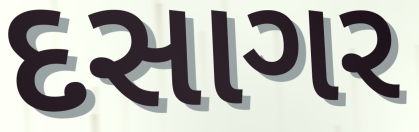
દસાગર